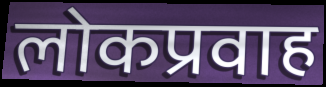
लोकप्रवाह